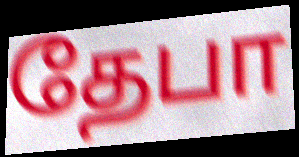
தேபா